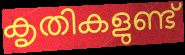
കൃതികളുണ്ട്